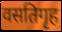
वसतिगृह